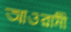
আওৱামী